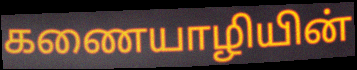
கணையாழியின்